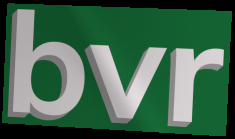
bvr